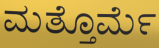
ಮತ್ತೊರ್ಮೆ